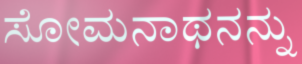
ಸೋಮನಾಥನನ್ನು